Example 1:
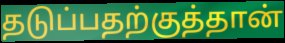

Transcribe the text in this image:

தடுப்பதற்குத்தான்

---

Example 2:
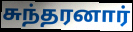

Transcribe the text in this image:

சுந்தரனார்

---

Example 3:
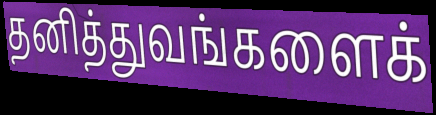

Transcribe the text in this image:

தனித்துவங்களைக்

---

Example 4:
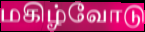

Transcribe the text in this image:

மகிழ்வோடு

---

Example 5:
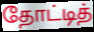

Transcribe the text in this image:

தோட்டித்